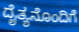
ದೈತ್ಯನೊಂದಿಗೆ